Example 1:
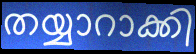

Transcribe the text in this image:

തയ്യാറാക്കി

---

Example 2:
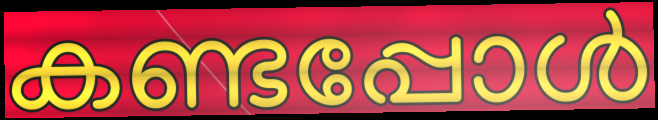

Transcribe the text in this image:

കണ്ടപ്പോൾ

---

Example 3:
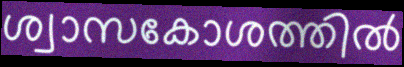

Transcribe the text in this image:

ശ്വാസകോശത്തിൽ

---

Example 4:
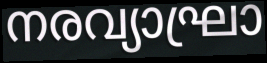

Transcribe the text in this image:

നരവ്യാഘ്രാ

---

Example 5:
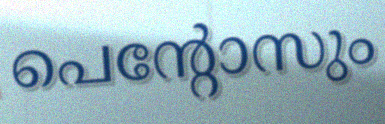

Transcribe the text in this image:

പെന്റോസും